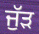
ਜੁੱੜ